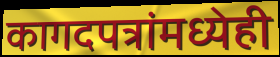
कागदपत्रांमध्येही